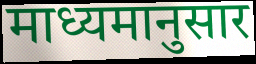
माध्यमानुसार